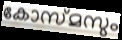
കോസ്മസും